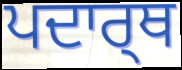
ਪਦਾਰ੍ਥ